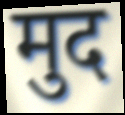
मुद